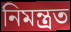
নিমন্ত্রত